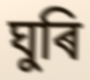
ঘুৰি